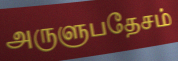
அருளுபதேசம்